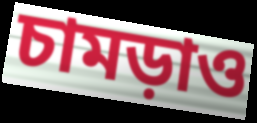
চামড়াও